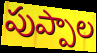
పుప్పాల